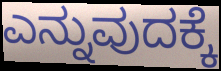
ಎನ್ನುವುದಕ್ಕೆ